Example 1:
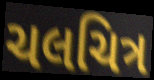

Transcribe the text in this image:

ચલચિત્ર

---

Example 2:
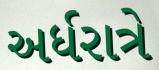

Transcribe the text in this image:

અર્ધરાત્રે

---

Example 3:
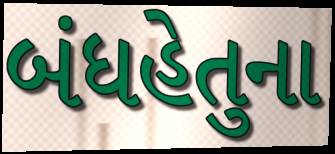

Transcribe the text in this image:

બંધહેતુના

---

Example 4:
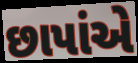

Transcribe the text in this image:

છાપાંએ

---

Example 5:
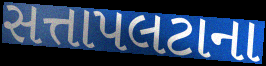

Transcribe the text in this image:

સત્તાપલટાના